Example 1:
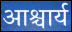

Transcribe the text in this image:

आश्चार्य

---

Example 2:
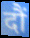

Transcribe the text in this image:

दौं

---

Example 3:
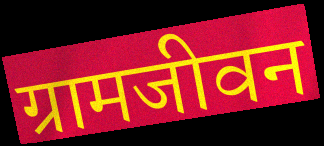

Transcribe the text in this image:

ग्रामजीवन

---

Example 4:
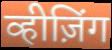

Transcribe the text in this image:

व्हीज़िंग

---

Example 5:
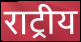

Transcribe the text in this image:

राट्रीय